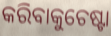
କରିବାକୁଚେଷ୍ଟା